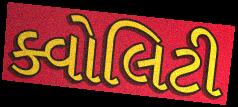
ક્વોલિટી